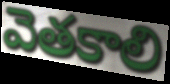
వెతకాలి